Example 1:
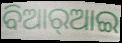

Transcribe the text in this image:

ବିଆର୍‌ଆଇ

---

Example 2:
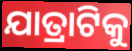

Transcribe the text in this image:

ଯାତ୍ରାଟିକୁ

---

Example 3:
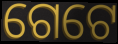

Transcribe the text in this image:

ଗେଟେ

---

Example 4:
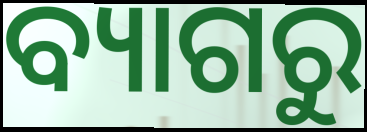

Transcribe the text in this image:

ବ୍ୟାଗରୁ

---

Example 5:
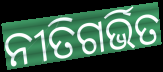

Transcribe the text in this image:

ନୀତିଗର୍ଭିତ